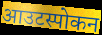
आउटस्पोकन